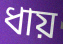
ধায়